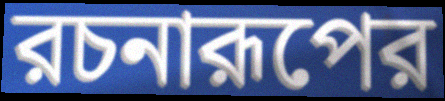
রচনারূপের